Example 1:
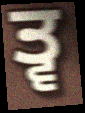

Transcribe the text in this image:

ਤ੍ਵ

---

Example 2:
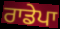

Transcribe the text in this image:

ਰਾਡੇਪਾ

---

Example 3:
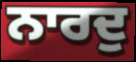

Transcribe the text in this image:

ਨਾਰਦੁ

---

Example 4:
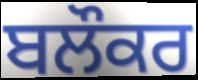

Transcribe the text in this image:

ਬਲੌਕਰ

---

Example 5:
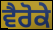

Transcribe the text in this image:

ਵੈਰੋਕੇ